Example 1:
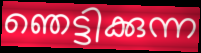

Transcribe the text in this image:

ഞെട്ടിക്കുന്ന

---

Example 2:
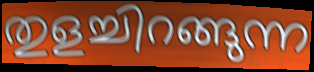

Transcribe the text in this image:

തുളച്ചിറങ്ങുന്ന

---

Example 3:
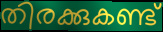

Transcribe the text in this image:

തിരക്കുകണ്ട്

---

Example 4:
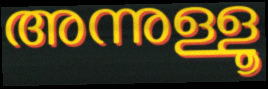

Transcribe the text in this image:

അന്നുള്ളൂ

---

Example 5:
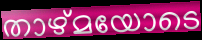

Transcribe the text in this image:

താഴ്മയോടെ